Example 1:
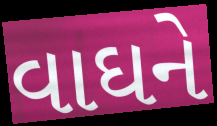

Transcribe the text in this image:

વાઘને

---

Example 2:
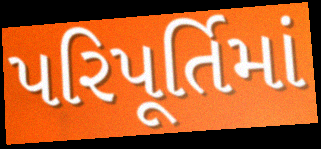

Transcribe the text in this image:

પરિપૂર્તિમાં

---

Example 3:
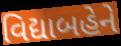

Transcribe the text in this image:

વિદ્યાબહેને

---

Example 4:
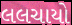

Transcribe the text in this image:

લલચાયો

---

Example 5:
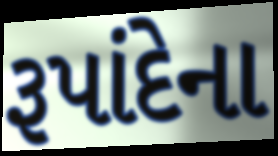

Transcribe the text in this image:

રૂપાંદેના